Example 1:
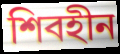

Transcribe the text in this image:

শিবহীন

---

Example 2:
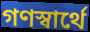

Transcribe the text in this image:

গণস্বার্থে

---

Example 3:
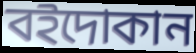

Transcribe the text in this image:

বইদোকান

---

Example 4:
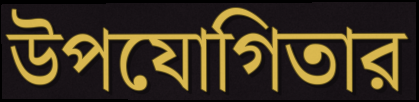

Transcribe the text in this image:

উপযোগিতার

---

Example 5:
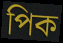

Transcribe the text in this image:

পিক